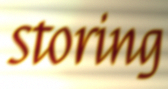
storing